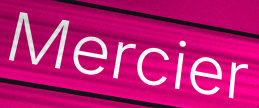
Mercier